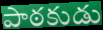
పాఠకుడు